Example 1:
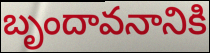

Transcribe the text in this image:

బృందావనానికి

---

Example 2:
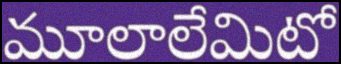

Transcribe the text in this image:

మూలాలేమిటో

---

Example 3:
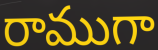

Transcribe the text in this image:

రాముగా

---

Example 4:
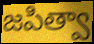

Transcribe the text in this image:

జపిత్వా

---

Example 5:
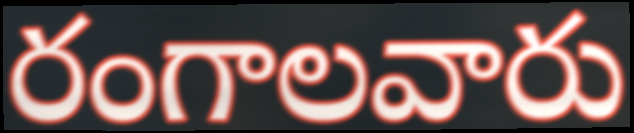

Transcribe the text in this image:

రంగాలవారు